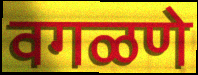
वगळणे